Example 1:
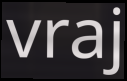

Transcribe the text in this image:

vraj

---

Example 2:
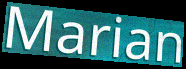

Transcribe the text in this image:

Marian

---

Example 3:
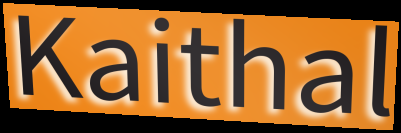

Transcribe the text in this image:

Kaithal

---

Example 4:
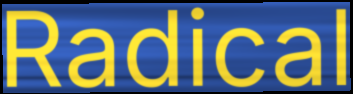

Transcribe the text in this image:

Radical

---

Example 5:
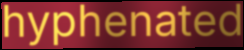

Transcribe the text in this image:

hyphenated